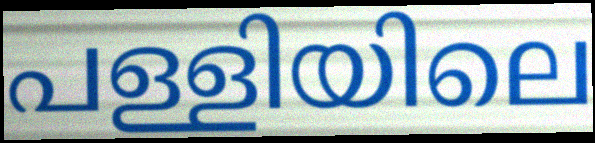
പള്ളിയിലെ